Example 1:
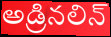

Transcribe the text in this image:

అడ్రినలిన్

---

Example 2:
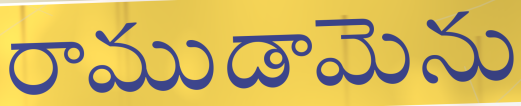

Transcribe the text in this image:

రాముడామెను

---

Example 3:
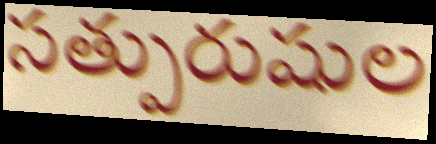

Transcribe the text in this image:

సత్పురుషుల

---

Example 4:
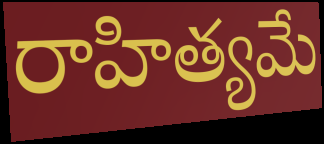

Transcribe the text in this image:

రాహిత్యమే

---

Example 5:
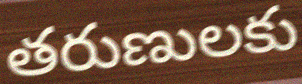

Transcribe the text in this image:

తరుణులకు